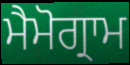
ਮੈਮੋਗ੍ਰਾਮ